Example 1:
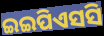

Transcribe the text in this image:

ଇଇପିଏସସି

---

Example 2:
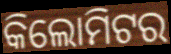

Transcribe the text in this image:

କିଲୋମିଟର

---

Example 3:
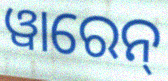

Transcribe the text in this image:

ୱାରେନ୍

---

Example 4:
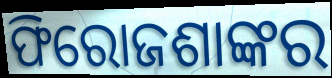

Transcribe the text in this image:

ଫିରୋଜଶାଙ୍କର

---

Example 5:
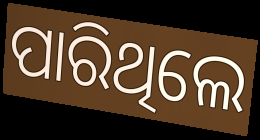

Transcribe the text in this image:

ପାରିଥିଲେ